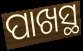
ପାଖସ୍ଥ